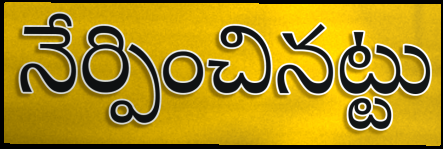
నేర్పించినట్టు